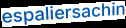
espaliersachin